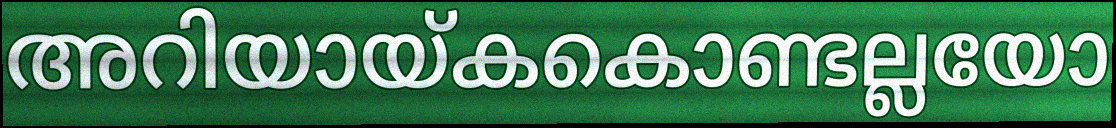
അറിയായ്കകൊണ്ടല്ലയോ